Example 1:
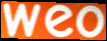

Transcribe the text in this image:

weo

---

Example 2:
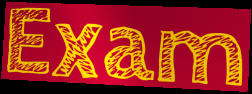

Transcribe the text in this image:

Exam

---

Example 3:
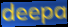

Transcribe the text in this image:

deepa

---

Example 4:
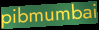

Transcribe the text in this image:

pibmumbai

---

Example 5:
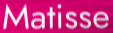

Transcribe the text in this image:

Matisse